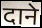
दाने